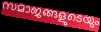
സമാജങ്ങളുടെയും